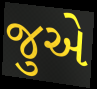
જુએ